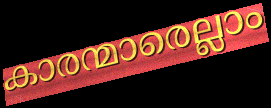
കാരന്മാരെല്ലാം